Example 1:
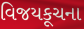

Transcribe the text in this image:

વિજયકૂચના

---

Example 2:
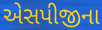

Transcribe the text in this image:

એસપીજીના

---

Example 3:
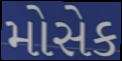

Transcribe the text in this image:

મોસેક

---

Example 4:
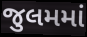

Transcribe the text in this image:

જુલમમાં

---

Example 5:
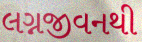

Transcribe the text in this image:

લગ્નજીવનથી